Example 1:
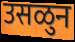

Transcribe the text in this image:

उसळुन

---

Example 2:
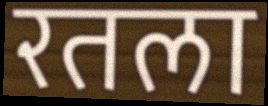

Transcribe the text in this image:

रतला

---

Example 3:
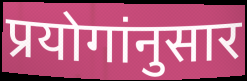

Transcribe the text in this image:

प्रयोगांनुसार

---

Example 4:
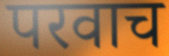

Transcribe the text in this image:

परवाच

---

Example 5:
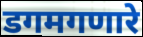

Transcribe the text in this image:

डगमगणारे